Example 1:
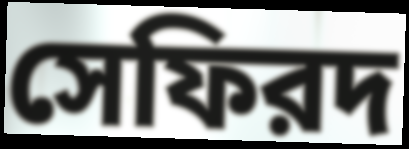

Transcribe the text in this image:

সেফিরদ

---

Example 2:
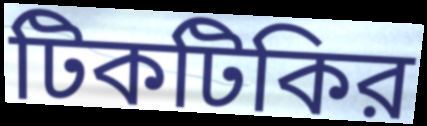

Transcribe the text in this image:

টিকটিকির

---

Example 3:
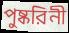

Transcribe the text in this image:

পুষ্করিনী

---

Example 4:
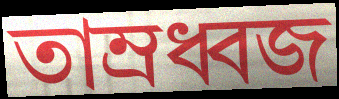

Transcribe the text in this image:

তাম্রধ্বজ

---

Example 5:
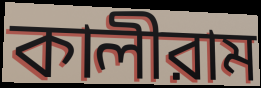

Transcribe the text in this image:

কালীরাম